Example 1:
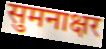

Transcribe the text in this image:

सुमनाक्षर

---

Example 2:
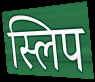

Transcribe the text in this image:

स्लिप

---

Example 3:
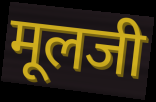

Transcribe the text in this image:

मूलजी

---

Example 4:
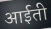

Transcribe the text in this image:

आईती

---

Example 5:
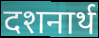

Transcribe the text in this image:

दशनार्थ